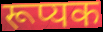
रूप्यक